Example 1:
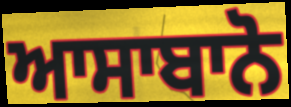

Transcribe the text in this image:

ਆਸਾਬਾਨੋ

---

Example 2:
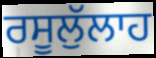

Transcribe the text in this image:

ਰਸੂਲੁੱਲਾਹ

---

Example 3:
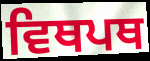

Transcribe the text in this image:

ਵਿਥਪਥ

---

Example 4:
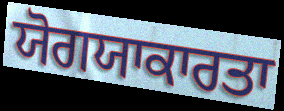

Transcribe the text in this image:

ਯੋਗਯਾਕਾਰਤਾ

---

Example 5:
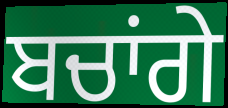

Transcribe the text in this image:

ਬਚਾਂਗੇ